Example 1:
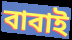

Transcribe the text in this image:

বাবাই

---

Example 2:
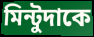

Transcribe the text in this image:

মিন্টুদাকে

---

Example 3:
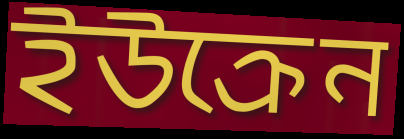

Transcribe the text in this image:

ইউক্রেন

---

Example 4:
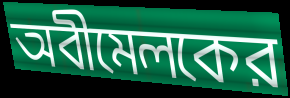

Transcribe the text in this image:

অবীমেলকের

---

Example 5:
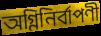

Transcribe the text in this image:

অগ্নিনির্বাপণী